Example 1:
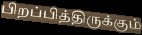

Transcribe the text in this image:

பிறப்பித்திருக்கும்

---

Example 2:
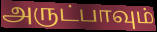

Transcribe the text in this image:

அருட்பாவும்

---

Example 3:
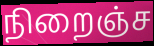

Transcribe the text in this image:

நிறைஞ்ச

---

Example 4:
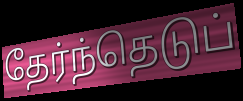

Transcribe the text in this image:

தேர்ந்தெடுப்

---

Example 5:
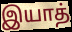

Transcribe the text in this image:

இயாத்